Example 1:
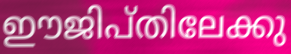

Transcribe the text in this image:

ഈജിപ്തിലേക്കു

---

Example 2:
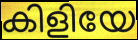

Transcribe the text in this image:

കിളിയേ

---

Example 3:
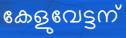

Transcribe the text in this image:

കേളുവേട്ടന്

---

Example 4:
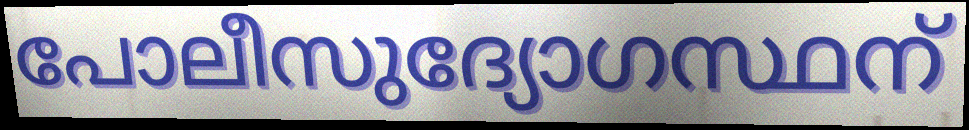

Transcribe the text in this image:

പോലീസുദ്യോഗസ്ഥന്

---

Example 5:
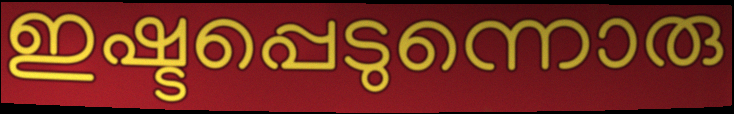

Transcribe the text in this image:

ഇഷ്ടപ്പെടുന്നൊരു